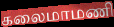
கலைமாமணி